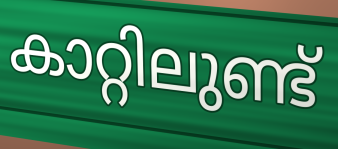
കാറ്റിലുണ്ട്